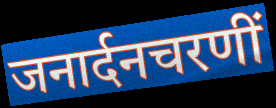
जनार्दनचरणीं